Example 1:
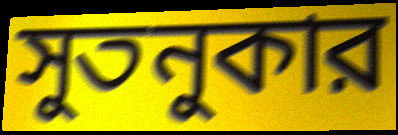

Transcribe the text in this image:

সুতনুকার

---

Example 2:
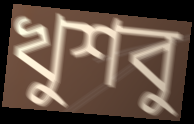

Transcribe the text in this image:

খুশবু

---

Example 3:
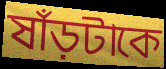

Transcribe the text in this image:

ষাঁড়টাকে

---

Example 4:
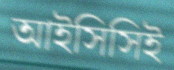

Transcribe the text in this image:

আইসিসিই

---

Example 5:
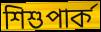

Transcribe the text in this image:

শিশুপার্ক